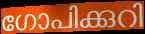
ഗോപിക്കുറി